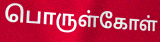
பொருள்கோள்